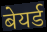
बेयर्ड